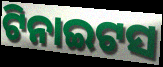
ଟିନାଇଟସ